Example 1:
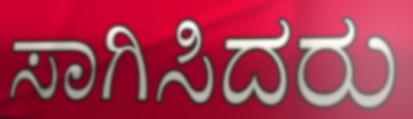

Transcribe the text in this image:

ಸಾಗಿಸಿದರು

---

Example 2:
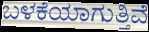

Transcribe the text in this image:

ಬಳಕೆಯಾಗುತ್ತಿವೆ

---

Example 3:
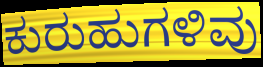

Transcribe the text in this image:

ಕುರುಹುಗಳಿವು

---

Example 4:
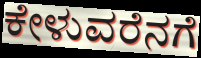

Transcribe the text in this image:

ಕೇಳುವರೆನಗೆ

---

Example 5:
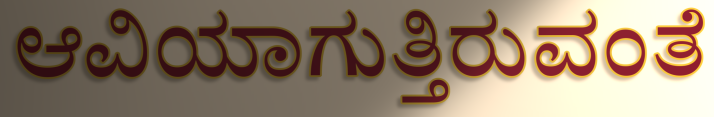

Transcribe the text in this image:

ಆವಿಯಾಗುತ್ತಿರುವಂತೆ